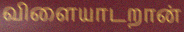
விளையாடறான்